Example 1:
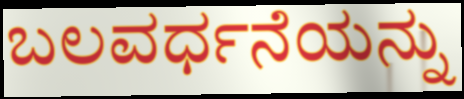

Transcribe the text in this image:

ಬಲವರ್ಧನೆಯನ್ನು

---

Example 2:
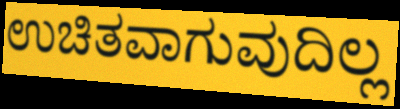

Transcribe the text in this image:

ಉಚಿತವಾಗುವುದಿಲ್ಲ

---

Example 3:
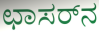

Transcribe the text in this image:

ಛಾಸರ್‌ನ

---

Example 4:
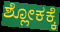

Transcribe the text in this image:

ಶ್ಲೋಕಕ್ಕೆ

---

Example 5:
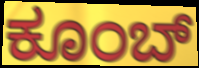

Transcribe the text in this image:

ಕೂಂಬ್